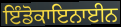
ਇੰਡੋਕਾਇਨਾਈਨ